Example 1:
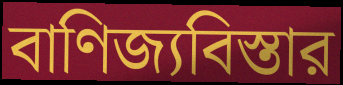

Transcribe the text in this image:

বাণিজ্যবিস্তার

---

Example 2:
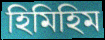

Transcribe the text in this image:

হিমিহিম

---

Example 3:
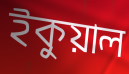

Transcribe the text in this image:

ইকুয়াল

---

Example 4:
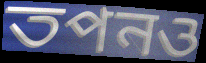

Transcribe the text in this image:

তপনও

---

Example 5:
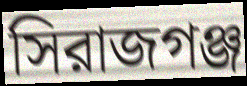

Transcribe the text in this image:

সিরাজগঞ্জ